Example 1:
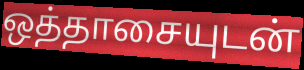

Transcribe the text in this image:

ஒத்தாசையுடன்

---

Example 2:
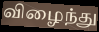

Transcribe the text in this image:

விழைந்து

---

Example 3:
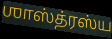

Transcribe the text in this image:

ஶாஸ்த்ரஸ்ய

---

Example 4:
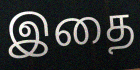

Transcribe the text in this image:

இதை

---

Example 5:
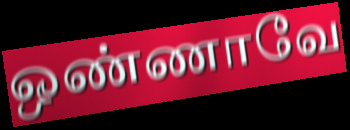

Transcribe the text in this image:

ஒண்ணாவே